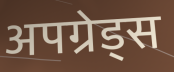
अपग्रेड्स